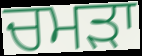
ਚਮੜਾ